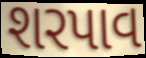
શરપાવ